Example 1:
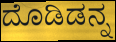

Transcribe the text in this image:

ದೊಡಿಡನ್ನ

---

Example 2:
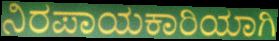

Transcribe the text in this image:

ನಿರಪಾಯಕಾರಿಯಾಗಿ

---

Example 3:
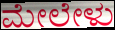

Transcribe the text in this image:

ಮೇಲೇಳು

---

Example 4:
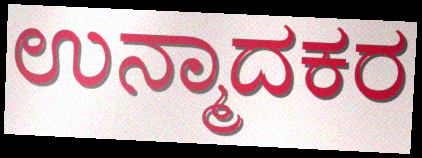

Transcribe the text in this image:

ಉನ್ಮಾದಕರ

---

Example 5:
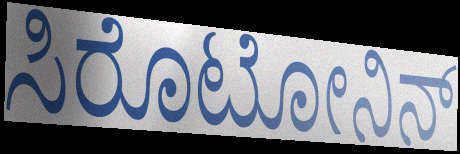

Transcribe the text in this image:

ಸಿರೊಟೋನಿನ್